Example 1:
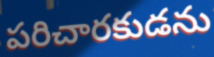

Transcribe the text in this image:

పరిచారకుడను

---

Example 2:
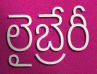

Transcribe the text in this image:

లైబ్రేరీ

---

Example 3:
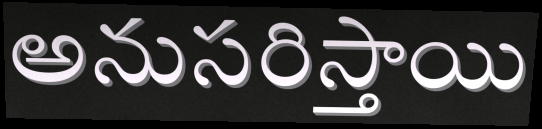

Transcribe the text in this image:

అనుసరిస్తాయి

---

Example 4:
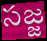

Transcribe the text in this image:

సజ్జ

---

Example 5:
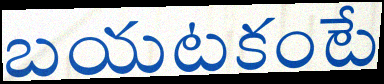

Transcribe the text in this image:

బయటకంటే